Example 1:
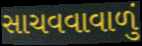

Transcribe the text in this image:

સાચવવાવાળું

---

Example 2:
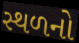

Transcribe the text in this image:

સ્થળનો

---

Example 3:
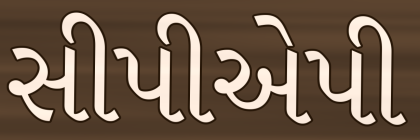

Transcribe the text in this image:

સીપીએપી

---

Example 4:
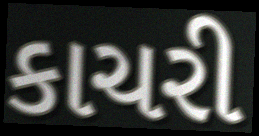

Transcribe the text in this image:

કાચરી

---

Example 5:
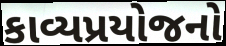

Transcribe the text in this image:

કાવ્યપ્રયોજનો